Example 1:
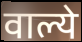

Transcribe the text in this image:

वाल्ये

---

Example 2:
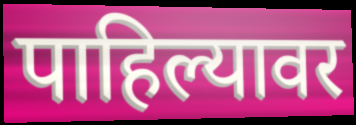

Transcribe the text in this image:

पाहिल्‍यावर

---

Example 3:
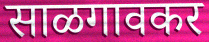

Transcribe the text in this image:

साळगावकर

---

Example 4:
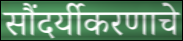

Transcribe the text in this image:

सौंदर्यीकरणाचे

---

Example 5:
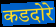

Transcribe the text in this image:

कडदोरे